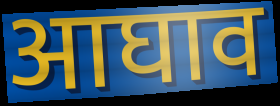
आघाव